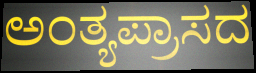
ಅಂತ್ಯಪ್ರಾಸದ